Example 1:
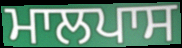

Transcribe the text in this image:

ਮਾਲਪਾਸ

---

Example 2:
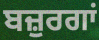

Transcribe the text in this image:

ਬਜ਼ੁਰਗਾਂ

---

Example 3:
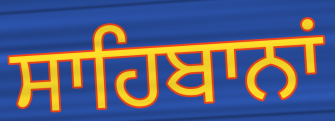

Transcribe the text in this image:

ਸਾਹਿਬਾਨਾਂ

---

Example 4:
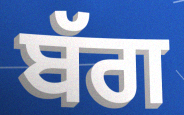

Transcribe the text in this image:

ਬੱਗ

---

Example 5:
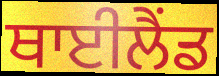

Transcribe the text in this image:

ਥਾਈਲੈਂਡ